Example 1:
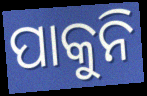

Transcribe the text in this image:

ପାକୁନି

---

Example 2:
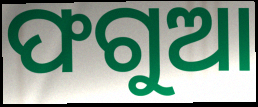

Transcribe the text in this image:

ଫଗୁଆ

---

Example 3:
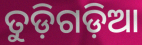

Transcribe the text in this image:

ତୁଡ଼ିଗଡ଼ିଆ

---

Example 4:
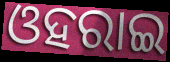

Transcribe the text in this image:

ଓହରାଇ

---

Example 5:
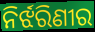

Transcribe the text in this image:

ନିର୍ଝରିଣୀର